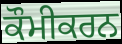
ਕੌਮੀਕਰਨ